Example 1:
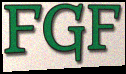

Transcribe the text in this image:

FGF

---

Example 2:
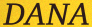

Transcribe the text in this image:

DANA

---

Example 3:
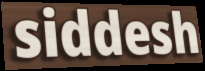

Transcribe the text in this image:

siddesh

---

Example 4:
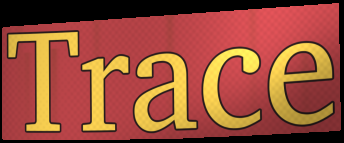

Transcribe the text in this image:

Trace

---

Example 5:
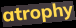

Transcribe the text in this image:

atrophy